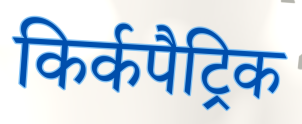
किर्कपैट्रिक